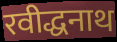
रवीद्धनाथ